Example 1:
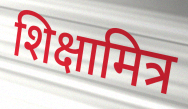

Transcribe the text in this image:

शिक्षामित्र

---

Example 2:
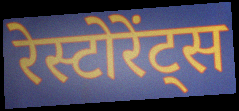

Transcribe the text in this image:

रेस्टोरेंट्स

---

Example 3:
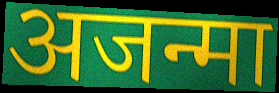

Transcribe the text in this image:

अजन्मा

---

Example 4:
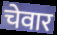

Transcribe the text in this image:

चेवार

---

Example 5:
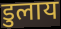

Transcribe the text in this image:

डुलाय